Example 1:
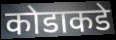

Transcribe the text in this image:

कोडाकडे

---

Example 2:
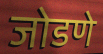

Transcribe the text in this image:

जोडणे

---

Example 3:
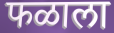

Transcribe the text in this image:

फळाला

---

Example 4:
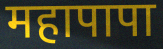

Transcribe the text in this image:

महापापा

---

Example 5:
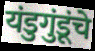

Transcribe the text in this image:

यंडुगुंडूंचे